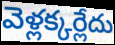
వెళ్లక్కర్లేదు